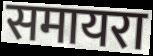
समायरा